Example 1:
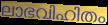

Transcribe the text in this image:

ലാഭവിഹിതം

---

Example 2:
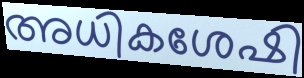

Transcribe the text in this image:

അധികശേഷി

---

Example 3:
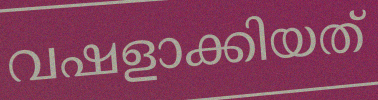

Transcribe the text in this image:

വഷളാക്കിയത്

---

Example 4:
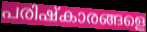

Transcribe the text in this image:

പരിഷ്‌കാരങ്ങളെ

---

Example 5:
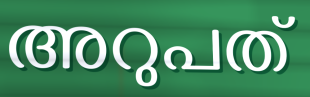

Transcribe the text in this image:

അറുപത്